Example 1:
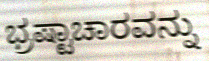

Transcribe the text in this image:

ಭ್ರಷ್ಟಾಚಾರವನ್ನು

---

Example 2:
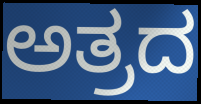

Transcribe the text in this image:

ಅತ್ರದ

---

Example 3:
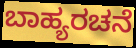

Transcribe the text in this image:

ಬಾಹ್ಯರಚನೆ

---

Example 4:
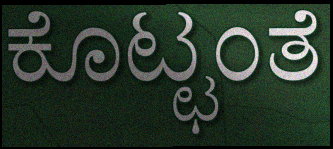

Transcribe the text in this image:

ಕೊಟ್ಟಂತೆ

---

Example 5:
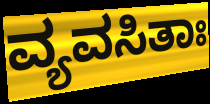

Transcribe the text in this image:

ವ್ಯವಸಿತಾಃ